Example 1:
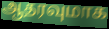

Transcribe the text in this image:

ஆதரவுமாக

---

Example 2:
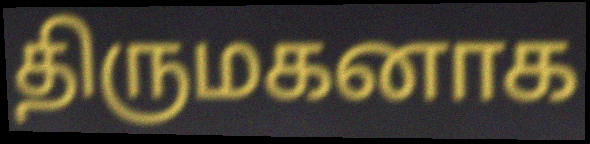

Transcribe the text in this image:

திருமகனாக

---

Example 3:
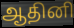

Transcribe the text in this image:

ஆதினி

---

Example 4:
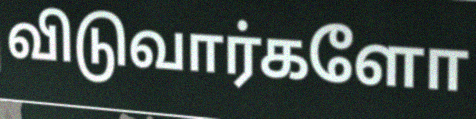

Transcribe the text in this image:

விடுவார்களோ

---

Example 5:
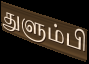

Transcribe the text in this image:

துளும்பி